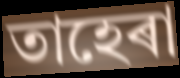
তাহেৰা